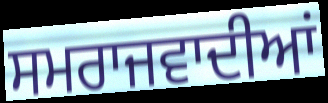
ਸਮਰਾਜਵਾਦੀਆਂ